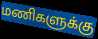
மணிகளுக்கு